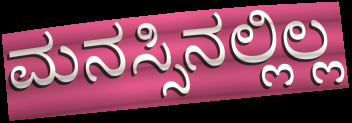
ಮನಸ್ಸಿನಲ್ಲಿಲ್ಲ